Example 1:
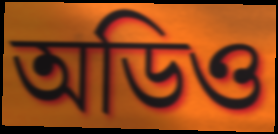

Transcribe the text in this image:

অডিও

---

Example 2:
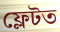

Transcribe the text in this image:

ফ্লেটত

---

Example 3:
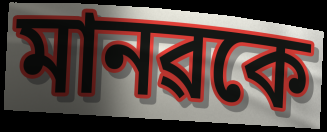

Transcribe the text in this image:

মানৱকে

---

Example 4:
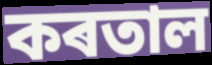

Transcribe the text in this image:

কৰতাল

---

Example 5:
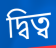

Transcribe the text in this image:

দ্বিত্ব